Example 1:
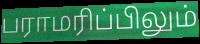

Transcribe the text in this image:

பராமரிப்பிலும்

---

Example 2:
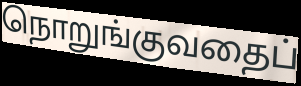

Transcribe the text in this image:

நொறுங்குவதைப்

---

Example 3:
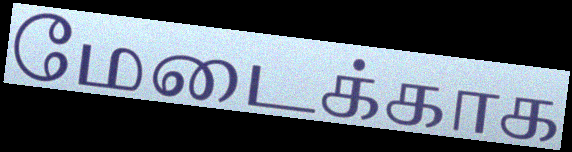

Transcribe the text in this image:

மேடைக்காக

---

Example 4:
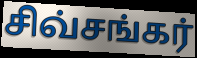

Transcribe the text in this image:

சிவ்சங்கர்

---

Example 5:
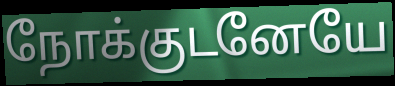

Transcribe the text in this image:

நோக்குடனேயே